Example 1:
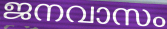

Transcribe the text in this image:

ജനവാസം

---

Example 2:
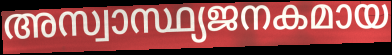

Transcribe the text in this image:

അസ്വാസ്ഥ്യജനകമായ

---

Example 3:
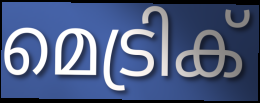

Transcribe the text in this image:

മെട്രിക്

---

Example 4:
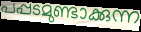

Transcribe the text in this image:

പപ്പടമുണ്ടാക്കുന്ന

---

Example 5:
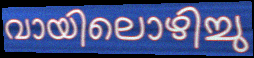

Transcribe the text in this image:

വായിലൊഴിച്ചു